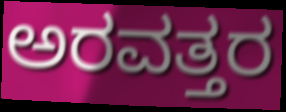
ಅರವತ್ತರ